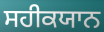
ਸਹੀਕਯਾਨ